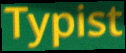
Typist